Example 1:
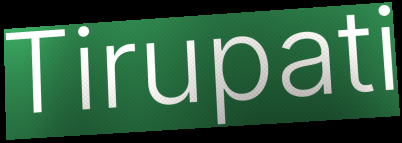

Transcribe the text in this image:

Tirupati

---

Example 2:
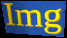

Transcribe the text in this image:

Img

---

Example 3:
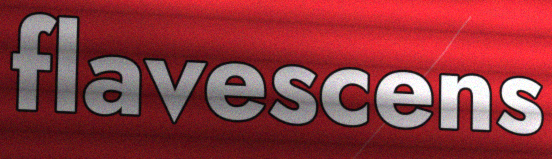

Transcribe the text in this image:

flavescens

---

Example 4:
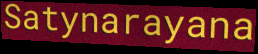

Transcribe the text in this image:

Satynarayana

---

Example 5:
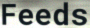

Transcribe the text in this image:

Feeds